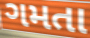
ગમતા